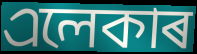
এলেকাৰ